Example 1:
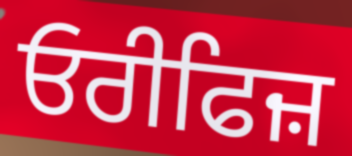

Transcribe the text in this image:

ਓਰੀਫਿਜ਼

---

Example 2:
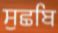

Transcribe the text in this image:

ਸੁਛਬਿ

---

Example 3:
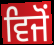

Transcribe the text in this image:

ਵਿਜੋਂ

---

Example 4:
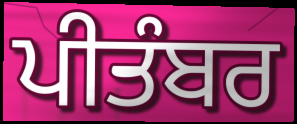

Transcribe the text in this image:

ਪੀਤੰਬਰ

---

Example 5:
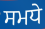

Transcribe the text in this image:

ਸਮਧੇ